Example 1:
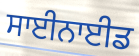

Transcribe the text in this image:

ਸਾਈਨਾਈਡ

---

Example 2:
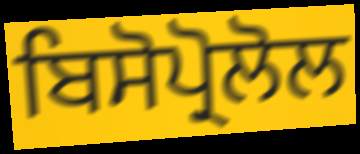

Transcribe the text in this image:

ਬਿਸੋਪ੍ਰੋਲੋਲ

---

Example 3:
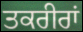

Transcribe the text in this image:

ਤਕਰੀਰਾਂ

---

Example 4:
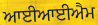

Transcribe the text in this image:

ਆਈਆਈਐਮ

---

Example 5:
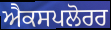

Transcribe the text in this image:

ਐਕਸਪਲੋਰਰ